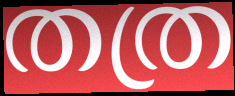
തത്ര